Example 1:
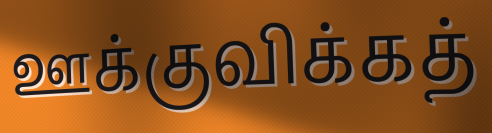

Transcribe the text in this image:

ஊக்குவிக்கத்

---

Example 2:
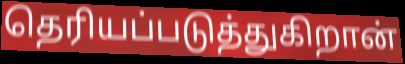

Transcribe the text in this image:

தெரியப்படுத்துகிறான்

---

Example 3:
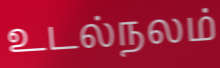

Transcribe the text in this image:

உடல்நலம்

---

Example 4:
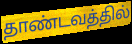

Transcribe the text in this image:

தாண்டவத்தில்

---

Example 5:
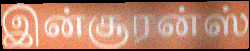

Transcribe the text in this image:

இன்சூரன்ஸ்